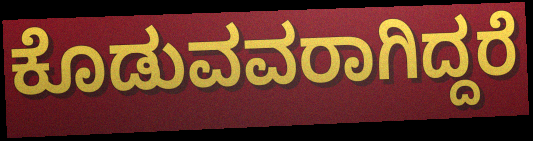
ಕೊಡುವವರಾಗಿದ್ದರೆ